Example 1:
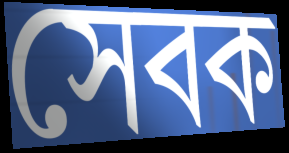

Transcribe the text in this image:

সেবক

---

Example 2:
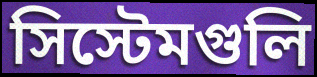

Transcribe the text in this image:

সিস্টেমগুলি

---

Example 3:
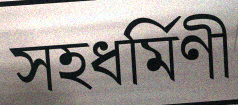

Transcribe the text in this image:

সহধর্মিণী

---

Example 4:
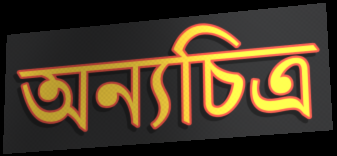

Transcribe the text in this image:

অন্যচিত্র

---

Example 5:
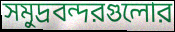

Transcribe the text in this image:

সমুদ্রবন্দরগুলোর